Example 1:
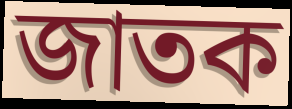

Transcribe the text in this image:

জাতক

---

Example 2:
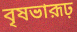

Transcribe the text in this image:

বৃষভারূঢ়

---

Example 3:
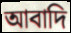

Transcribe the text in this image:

আবাদি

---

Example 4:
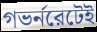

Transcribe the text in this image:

গভর্নরেটেই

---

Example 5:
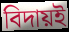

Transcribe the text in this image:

বিদায়ই